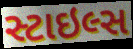
સ્ટાઇલ્સ